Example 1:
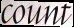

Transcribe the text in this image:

count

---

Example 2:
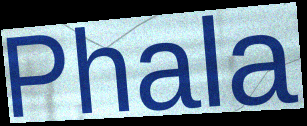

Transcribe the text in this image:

Phala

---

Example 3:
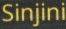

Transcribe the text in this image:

Sinjini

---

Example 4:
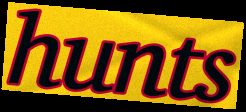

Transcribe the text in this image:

hunts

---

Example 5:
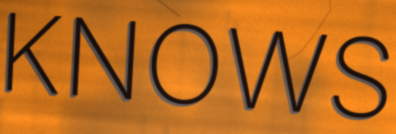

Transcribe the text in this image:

KNOWS